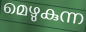
മെഴുകുന്ന